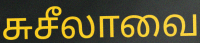
சுசீலாவை